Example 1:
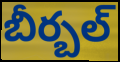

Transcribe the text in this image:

బీర్బల్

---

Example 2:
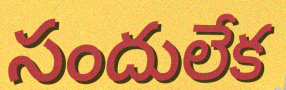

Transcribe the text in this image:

సందులేక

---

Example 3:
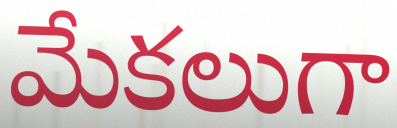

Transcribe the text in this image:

మేకలుగా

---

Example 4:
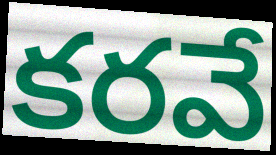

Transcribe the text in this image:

కరవే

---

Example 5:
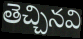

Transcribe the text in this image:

తెచ్చినవి